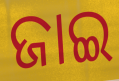
ଜାଇ